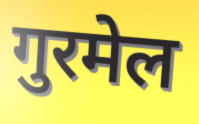
गुरमेल